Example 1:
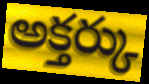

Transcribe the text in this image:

అక్తర్కు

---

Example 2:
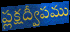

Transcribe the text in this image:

ప్లక్షద్వీపము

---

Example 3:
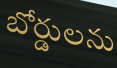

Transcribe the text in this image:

బోర్డులను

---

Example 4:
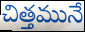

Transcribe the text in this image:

చిత్తమునే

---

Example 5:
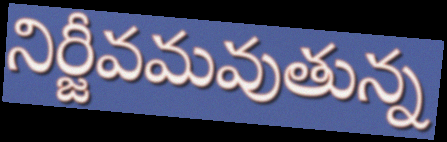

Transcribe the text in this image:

నిర్జీవమవుతున్న